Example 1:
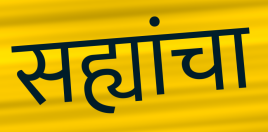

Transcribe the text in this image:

सह्यांचा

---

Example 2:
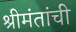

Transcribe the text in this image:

श्रीमंतांची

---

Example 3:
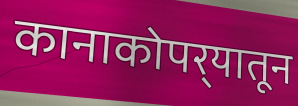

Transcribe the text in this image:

कानाकोपर्‍यातून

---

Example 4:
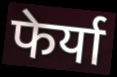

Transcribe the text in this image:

फेर्या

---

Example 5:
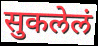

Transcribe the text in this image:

सुकलेलं